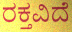
ರಕ್ತವಿದೆ